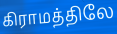
கிராமத்திலே